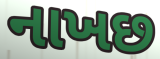
નાખછ